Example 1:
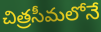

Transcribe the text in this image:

చిత్రసీమలోనే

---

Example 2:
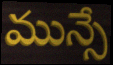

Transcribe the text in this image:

మున్సే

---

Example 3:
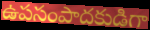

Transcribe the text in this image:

ఉపసంపాదకుడిగా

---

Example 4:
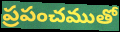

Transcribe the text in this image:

ప్రపంచముతో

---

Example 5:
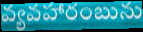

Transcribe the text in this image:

వ్యవహారంబును